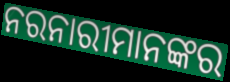
ନରନାରୀମାନଙ୍କର